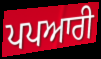
ਪਪਆਰੀ